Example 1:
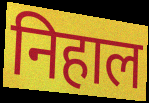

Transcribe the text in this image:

निहाल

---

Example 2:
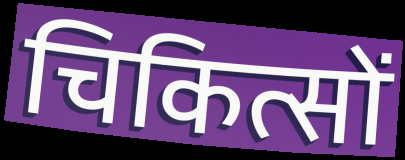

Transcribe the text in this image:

चिकित्सों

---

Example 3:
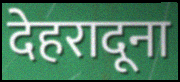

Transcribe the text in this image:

देहरादूना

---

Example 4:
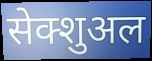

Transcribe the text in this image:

सेक्शुअल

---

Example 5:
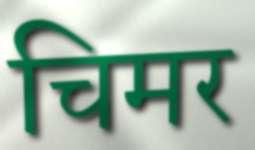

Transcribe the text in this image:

चिमर